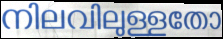
നിലവിലുള്ളതോ